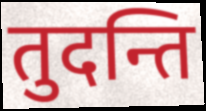
तुदन्ति